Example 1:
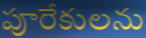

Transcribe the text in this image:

పూరేకులను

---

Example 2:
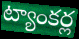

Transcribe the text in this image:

ట్యాంకర్ల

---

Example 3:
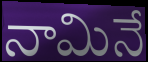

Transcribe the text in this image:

నామినే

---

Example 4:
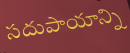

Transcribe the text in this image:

సదుపాయాన్ని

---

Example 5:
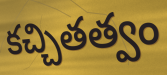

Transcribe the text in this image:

కచ్చితత్వం